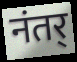
नंतर्